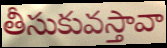
తీసుకువస్తావా